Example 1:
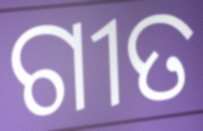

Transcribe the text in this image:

ଗୀତ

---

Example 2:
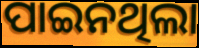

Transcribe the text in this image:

ପାଇନଥିଲା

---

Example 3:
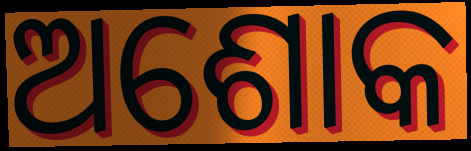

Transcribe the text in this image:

ଅଶୋକ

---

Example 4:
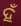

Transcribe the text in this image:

ହଁ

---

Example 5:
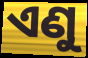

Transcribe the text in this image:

ଏଣୁ